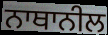
ਨਾਥਾਨੀਲ